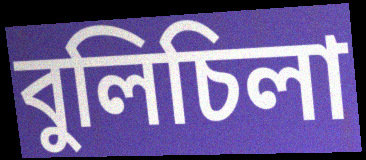
বুলিচিলা